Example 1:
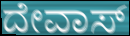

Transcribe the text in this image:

ದೇವಾಸ್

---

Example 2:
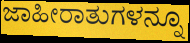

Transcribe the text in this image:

ಜಾಹೀರಾತುಗಳನ್ನೂ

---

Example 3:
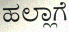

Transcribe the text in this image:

ಹಲ್ಲಾಗೆ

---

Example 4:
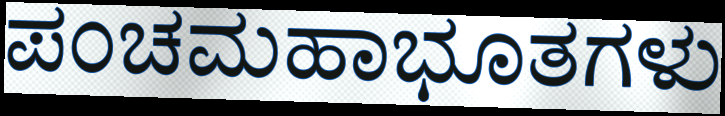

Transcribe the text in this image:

ಪಂಚಮಹಾಭೂತಗಳು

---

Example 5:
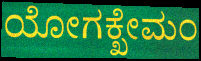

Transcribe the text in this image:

ಯೋಗಕ್ಖೇಮಂ